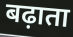
बढ़ाता